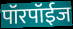
पॉरपॉईज